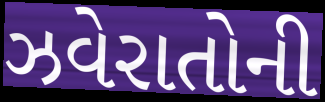
ઝવેરાતોની